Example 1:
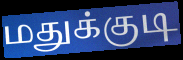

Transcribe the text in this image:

மதுக்குடி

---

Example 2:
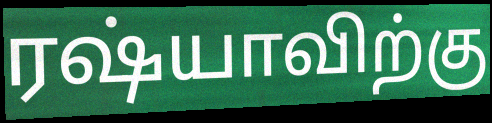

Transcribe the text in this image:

ரஷ்யாவிற்கு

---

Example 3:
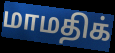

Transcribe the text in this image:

மாமதிக்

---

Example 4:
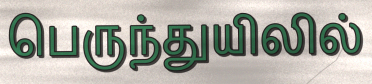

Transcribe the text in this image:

பெருந்துயிலில்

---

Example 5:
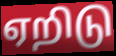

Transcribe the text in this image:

ஏறிடு